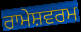
ਰਾਮੇਸ਼ਵਰਮ